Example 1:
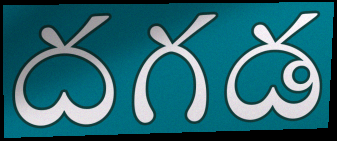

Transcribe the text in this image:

దగడ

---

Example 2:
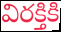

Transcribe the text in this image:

విరక్తికి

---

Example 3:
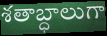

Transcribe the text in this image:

శతాబ్ధాలుగా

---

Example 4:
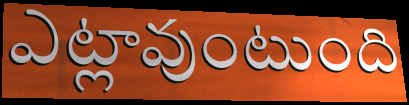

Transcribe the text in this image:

ఎట్లావుంటుంది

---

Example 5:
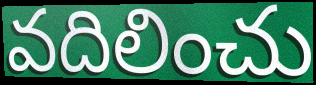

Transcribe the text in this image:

వదిలించు